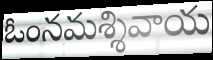
ఓంనమశ్శివాయ